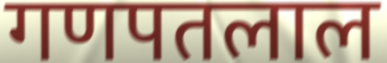
गणपतलाल